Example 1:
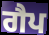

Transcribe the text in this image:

ਗੈਪ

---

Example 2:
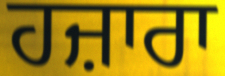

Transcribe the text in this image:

ਹਜ਼ਾਰਾ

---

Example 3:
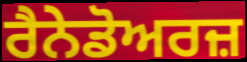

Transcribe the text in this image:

ਰੈਨੇਡੋਅਰਜ਼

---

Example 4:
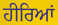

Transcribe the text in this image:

ਹੀਰਿਆਂ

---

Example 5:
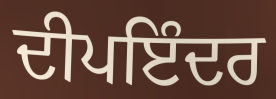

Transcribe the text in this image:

ਦੀਪਇੰਦਰ